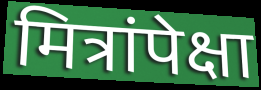
मित्रांपेक्षा